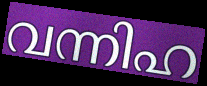
വന്നിഹ